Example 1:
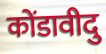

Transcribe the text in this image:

कोंडावीदु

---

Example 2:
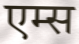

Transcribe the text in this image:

एम्‍स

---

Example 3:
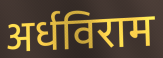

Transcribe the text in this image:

अर्धविराम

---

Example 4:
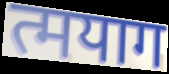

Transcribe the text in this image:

त्मयाग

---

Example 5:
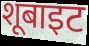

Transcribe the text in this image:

शूबाइट